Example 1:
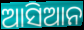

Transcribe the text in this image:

ଆସିଆନ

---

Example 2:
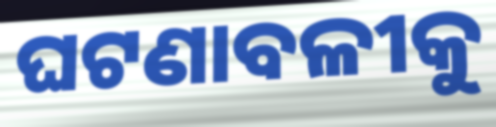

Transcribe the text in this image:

ଘଟଣାବଳୀକୁ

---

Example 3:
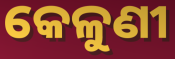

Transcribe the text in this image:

କେଳୁଣୀ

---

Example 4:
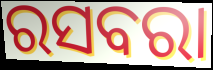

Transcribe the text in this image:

ରସବରା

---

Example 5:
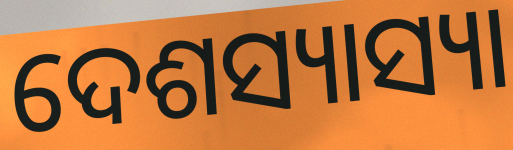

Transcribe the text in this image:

ଦେଶସ୍ୟାସ୍ୟା